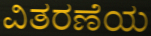
ವಿತರಣೆಯ